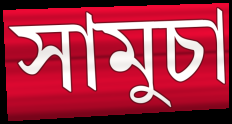
সামুচা